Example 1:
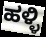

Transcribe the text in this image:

ಹಳ್ಳಿ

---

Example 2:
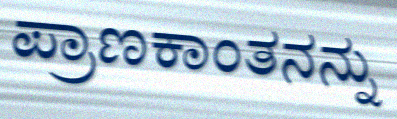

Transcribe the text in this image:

ಪ್ರಾಣಕಾಂತನನ್ನು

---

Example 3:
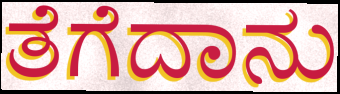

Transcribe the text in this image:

ತೆಗೆದಾನು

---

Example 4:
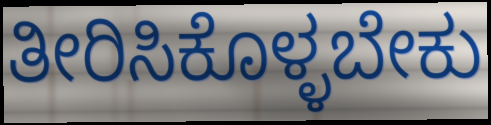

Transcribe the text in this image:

ತೀರಿಸಿಕೊಳ್ಳಬೇಕು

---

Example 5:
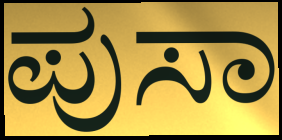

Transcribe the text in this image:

ಪುಸಾ